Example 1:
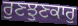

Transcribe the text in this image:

ਰੁਣਝੁਣਕਾਰੁ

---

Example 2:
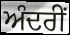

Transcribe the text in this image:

ਅੰਦਰੀਂ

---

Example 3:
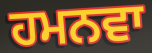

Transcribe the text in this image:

ਹਮਨਵਾ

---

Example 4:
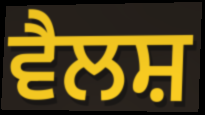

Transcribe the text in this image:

ਵੈਲਸ਼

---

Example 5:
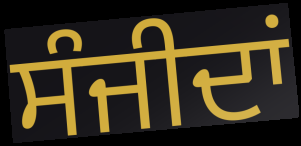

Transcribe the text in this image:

ਸੰਜੀਦਾਂ